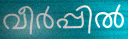
വീർപ്പിൽ